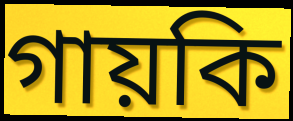
গায়কি